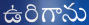
ఉరిగాను